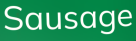
Sausage